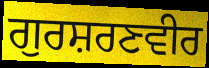
ਗੁਰਸ਼ਰਣਵੀਰ